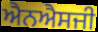
ਐਨਐਸਜੀ